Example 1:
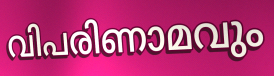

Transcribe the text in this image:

വിപരിണാമവും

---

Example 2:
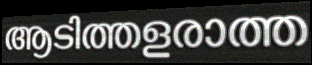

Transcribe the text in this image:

ആടിത്തളരാത്ത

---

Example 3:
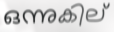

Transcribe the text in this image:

ഒന്നുകില്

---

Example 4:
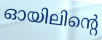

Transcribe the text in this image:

ഓയിലിന്റെ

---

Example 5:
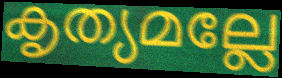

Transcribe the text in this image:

കൃത്യമല്ലേ